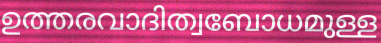
ഉത്തരവാദിത്വബോധമുള്ള